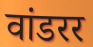
वांडरर